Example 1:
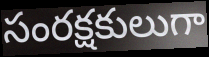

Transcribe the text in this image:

సంరక్షకులుగా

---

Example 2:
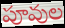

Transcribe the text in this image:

పూవుల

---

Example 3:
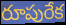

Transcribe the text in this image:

రూపురేక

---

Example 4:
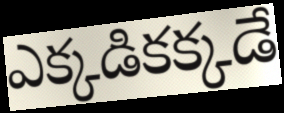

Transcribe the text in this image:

ఎక్కడికక్కడే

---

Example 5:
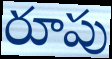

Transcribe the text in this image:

రూపు